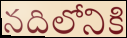
నదిలోనికి